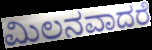
ಮಿಲನವಾದರೆ